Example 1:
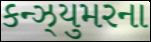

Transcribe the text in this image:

કન્ઝ્યુમરના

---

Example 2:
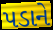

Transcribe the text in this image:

પડાને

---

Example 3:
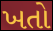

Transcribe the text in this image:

ખતો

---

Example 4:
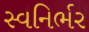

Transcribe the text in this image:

સ્વનિર્ભર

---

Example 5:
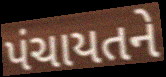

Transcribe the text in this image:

પંચાયતને